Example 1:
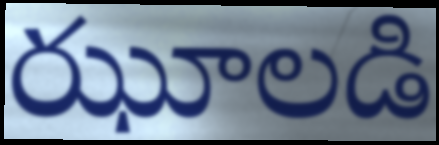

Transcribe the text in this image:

ఝూలడి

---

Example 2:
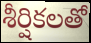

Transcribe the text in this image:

శీర్షికలతో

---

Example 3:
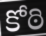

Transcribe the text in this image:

కోఠి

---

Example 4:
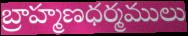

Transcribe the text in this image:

బ్రాహ్మణధర్మములు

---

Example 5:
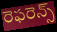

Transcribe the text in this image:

రెఫరెన్స్